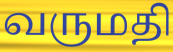
வருமதி